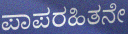
ಪಾಪರಹಿತನೇ